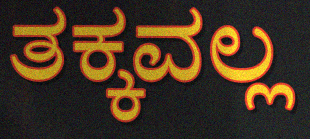
ತಕ್ಕವಲ್ಲ